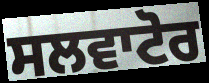
ਸਲਵਾਟੋਰ